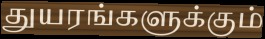
துயரங்களுக்கும்